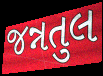
જન્નતુલ